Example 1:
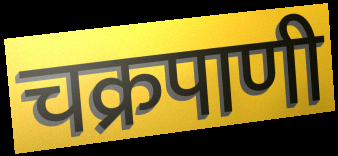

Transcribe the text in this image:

चक्रपाणी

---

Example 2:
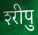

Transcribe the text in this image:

श्रीपु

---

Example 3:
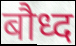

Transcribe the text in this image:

बौध्द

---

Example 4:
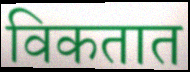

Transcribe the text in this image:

विकतात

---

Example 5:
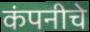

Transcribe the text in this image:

कंपनीचे